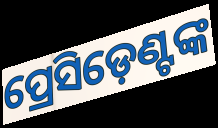
ପ୍ରେସିଡ଼େଣ୍ଟଙ୍କ